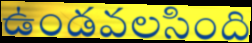
ఉండవలసింది